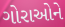
ગોરાઓને